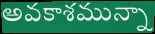
అవకాశమున్నా